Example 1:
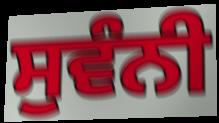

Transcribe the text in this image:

ਸੁਵੰਨੀ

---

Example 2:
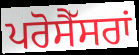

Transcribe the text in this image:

ਪਰੋਸੈੱਸਰਾਂ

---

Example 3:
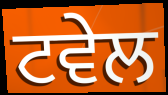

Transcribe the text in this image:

ਟਵੇਲ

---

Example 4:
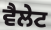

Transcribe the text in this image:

ਵੈਲੇਟ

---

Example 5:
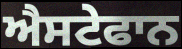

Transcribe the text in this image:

ਐਸਟੇਫਾਨ